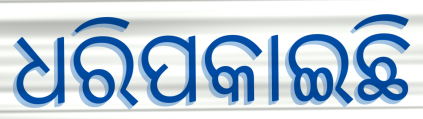
ଧରିପକାଇଛି